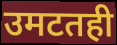
उमटतही